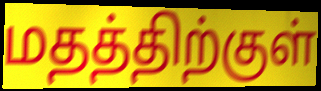
மதத்திற்குள்